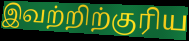
இவற்றிற்குரிய